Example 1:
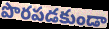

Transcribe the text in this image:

పొరపడకుండా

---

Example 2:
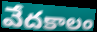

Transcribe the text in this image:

వేదకాలం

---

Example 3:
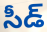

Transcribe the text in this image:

సీడ్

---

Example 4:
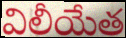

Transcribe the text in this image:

విలీయేత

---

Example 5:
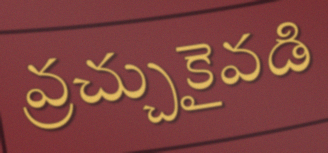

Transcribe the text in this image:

వ్రచ్చుకైవడి